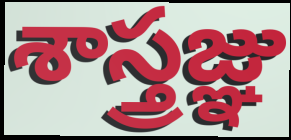
శాస్త్రజ్ఞు